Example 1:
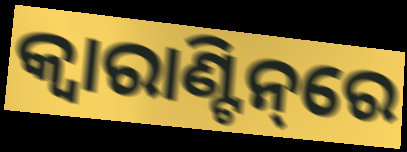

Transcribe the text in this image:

କ୍ବାରାଣ୍ଟିନ୍‌ରେ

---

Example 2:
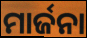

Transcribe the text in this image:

ମାର୍ଜନା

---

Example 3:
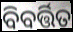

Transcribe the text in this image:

ବିବର୍ତ୍ତିତ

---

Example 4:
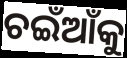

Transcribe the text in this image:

ଚଇଁଆଁକୁ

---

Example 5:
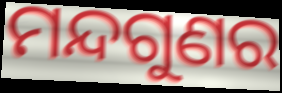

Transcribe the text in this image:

ମନ୍ଦଗୁଣର